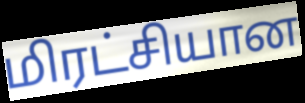
மிரட்சியான